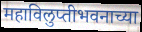
महाविलुप्तीभवनाच्या